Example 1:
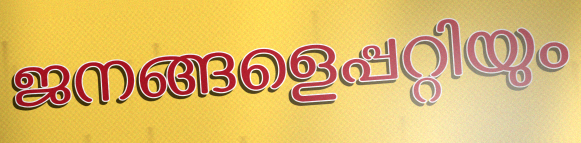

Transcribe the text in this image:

ജനങ്ങളെപ്പറ്റിയും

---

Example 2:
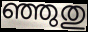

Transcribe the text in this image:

ഞ്ഞുതു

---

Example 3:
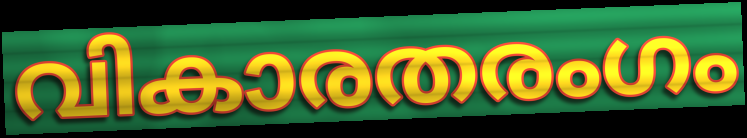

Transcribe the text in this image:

വികാരതരംഗം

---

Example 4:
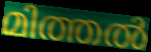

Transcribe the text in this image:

മിത്തൽ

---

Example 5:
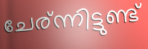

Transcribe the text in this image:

ചേര്ന്നിട്ടുണ്ട്